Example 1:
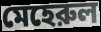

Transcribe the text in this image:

মেহেরুল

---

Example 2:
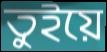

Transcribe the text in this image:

তুইয়ে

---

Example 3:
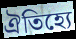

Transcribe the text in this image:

ঐতিহ্যে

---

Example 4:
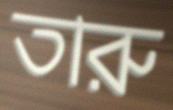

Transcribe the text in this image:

তারু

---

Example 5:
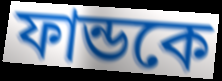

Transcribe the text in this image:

ফান্ডকে